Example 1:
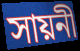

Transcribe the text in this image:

সায়নী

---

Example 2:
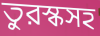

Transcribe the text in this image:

তুরস্কসহ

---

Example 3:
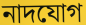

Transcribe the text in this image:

নাদযোগ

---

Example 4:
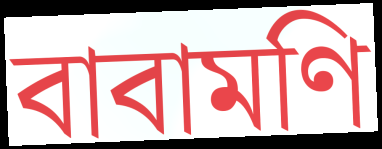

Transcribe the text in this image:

বাবামণি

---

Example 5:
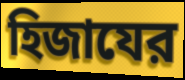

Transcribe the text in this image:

হিজাযের